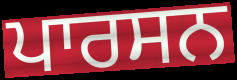
ਪਾਰਸਨ